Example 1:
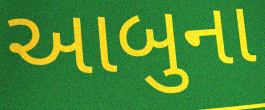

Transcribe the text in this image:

આબુના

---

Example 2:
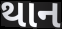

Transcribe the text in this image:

થાન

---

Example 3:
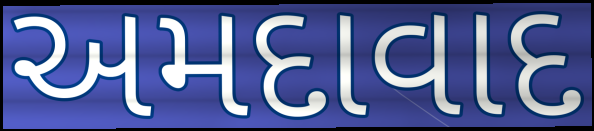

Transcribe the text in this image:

અમદાવાદ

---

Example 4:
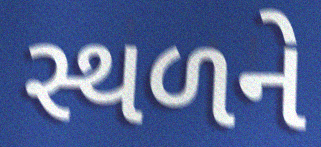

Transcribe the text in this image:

સ્થળને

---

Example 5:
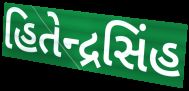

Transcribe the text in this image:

હિતેન્દ્રસિંહ